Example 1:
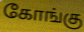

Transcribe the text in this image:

கோங்கு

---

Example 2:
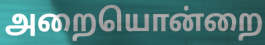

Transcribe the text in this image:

அறையொன்றை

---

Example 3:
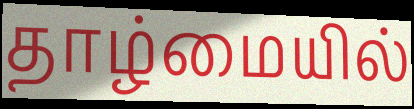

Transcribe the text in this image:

தாழ்மையில்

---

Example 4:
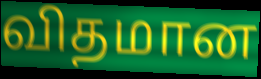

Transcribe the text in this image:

விதமான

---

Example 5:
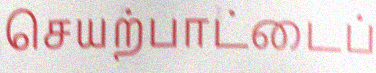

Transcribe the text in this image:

செயற்பாட்டைப்